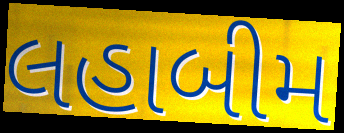
લહાબીમ